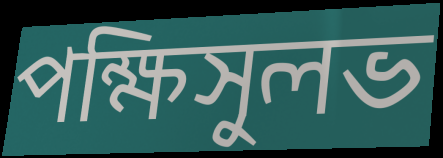
পক্ষিসুলভ